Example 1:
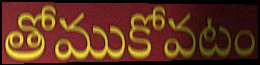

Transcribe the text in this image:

తోముకోవటం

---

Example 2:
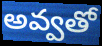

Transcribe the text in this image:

అవ్వతో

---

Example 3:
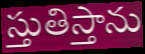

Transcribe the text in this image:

స్తుతిస్తాను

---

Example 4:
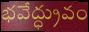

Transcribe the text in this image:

భవేద్ధ్రువం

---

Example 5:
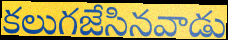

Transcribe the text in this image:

కలుగజేసినవాడు